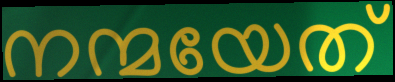
നന്മയേത്